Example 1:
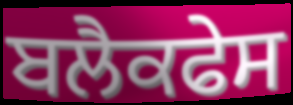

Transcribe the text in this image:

ਬਲੈਕਫੇਸ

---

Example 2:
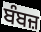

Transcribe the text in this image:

ਬੰਬਜ਼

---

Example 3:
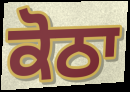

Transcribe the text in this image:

ਕੋਠਾ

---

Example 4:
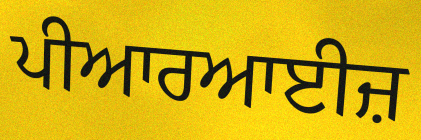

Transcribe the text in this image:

ਪੀਆਰਆਈਜ਼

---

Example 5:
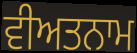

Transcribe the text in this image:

ਵੀਅਤਨਾਮ